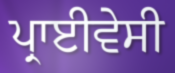
ਪ੍ਰਾਈਵੇਸੀ